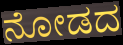
ನೋಡದ